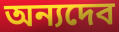
অন্যদেব